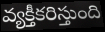
వ్యక్తీకరిస్తుంది